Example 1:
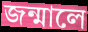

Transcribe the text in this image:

জন্মালে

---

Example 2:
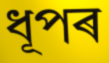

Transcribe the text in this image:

ধূপৰ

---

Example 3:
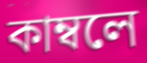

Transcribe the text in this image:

কাম্বলে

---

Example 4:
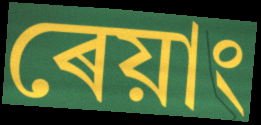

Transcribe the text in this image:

ৰেয়াং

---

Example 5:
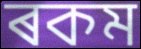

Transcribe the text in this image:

ৰকম